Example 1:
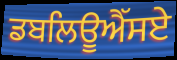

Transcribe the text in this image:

ਡਬਲਿਊਐੱਸਏ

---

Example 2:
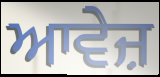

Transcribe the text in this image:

ਆਵੇਜ਼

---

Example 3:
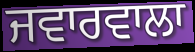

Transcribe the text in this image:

ਜਵਾਰਵਾਲਾ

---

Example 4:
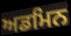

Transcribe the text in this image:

ਅਡਮਿਨ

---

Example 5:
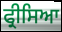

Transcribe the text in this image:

ਫ੍ਰੀਸਿਆ